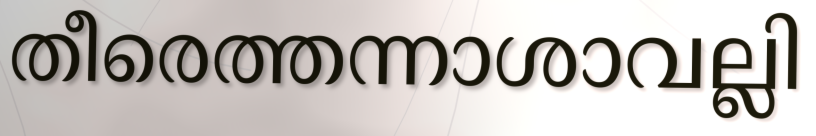
തീരെത്തന്നാശാവല്ലി